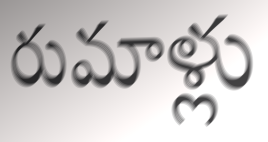
రుమాళ్లు